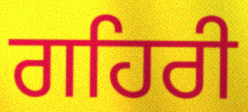
ਗਹਿਰੀ